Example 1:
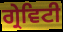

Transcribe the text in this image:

ਗ੍ਰੇਵਿਟੀ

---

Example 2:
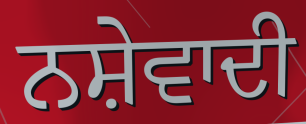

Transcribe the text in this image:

ਨਸ਼ੇਵਾਦੀ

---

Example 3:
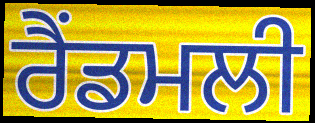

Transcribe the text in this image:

ਰੈਂਡਮਲੀ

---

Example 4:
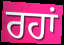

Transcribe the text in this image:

ਰਹਾਂ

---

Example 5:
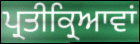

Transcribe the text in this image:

ਪ੍ਰਤੀਕ੍ਰਿਆਵਾਂ